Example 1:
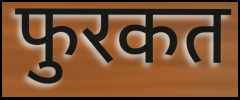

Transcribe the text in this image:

फुरकत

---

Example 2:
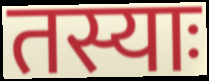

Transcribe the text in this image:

तस्याः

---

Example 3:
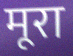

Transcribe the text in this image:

मूरा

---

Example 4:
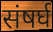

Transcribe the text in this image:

संषर्घ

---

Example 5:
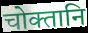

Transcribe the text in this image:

चोक्तानि